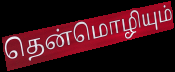
தென்மொழியும்